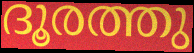
ദൂരത്തു